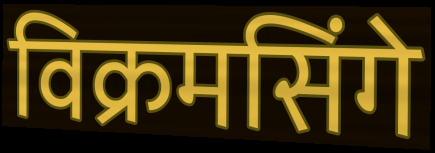
विक्रमसिंगे